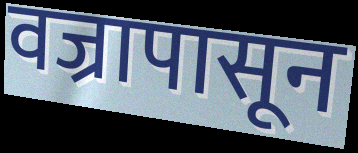
वज्रापासून